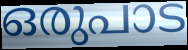
ഒരുപാട